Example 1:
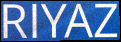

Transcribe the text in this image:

RIYAZ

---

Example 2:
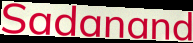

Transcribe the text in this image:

Sadanand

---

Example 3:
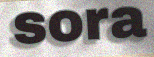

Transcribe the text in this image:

sora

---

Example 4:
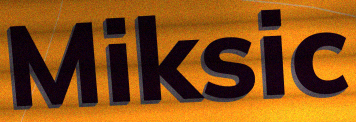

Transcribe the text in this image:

Miksic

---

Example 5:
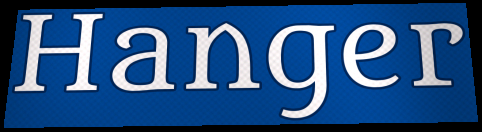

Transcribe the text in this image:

Hanger